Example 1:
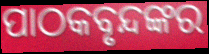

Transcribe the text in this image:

ପାଠକବୃନ୍ଦଙ୍କର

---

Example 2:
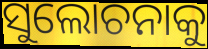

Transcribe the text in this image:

ସୁଲୋଚନାକୁ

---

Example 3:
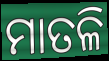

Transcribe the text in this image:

ମାତଳି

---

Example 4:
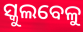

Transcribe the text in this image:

ସ୍କୁଲବେଳୁ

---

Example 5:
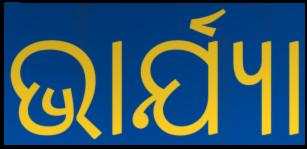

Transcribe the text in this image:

ଭାର୍ଯ୍ୟା